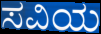
ಸವಿಯ